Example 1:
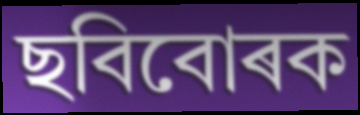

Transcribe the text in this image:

ছবিবোৰক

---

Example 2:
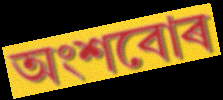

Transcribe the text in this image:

অংশবোৰ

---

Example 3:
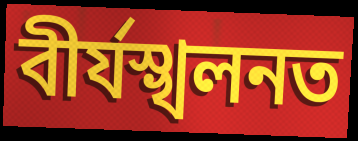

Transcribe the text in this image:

বীৰ্যস্খলনত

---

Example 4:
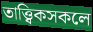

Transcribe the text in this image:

তাত্ত্বিকসকলে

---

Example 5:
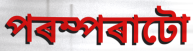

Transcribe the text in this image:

পৰম্পৰাটো